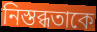
নিস্তব্ধতাকে